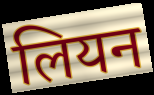
लियन